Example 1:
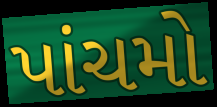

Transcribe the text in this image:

પાંચમો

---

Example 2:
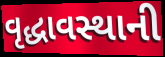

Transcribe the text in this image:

વૃદ્ધાવસ્થાની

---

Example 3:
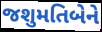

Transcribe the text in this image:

જશુમતિબેને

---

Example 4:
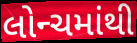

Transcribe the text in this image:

લોન્ચમાંથી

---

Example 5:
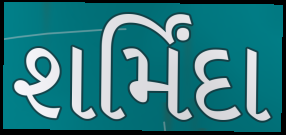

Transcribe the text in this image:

શર્મિંદા